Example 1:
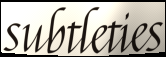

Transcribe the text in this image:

subtleties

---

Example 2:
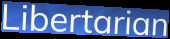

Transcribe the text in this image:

Libertarian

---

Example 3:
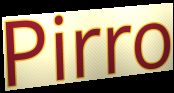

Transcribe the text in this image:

Pirro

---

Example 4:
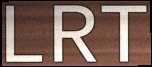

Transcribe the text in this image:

LRT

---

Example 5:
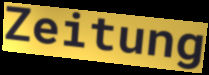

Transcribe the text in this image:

Zeitung